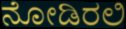
ನೋಡಿರಲಿ